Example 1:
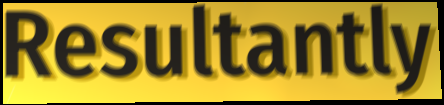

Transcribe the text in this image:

Resultantly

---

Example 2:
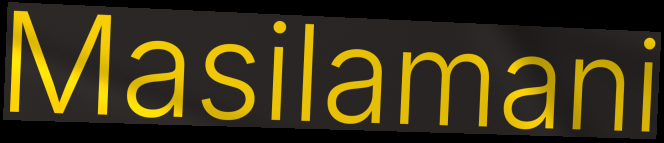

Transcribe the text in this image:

Masilamani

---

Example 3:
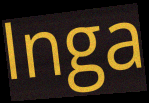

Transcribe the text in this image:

Inga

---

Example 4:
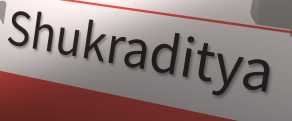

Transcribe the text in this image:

Shukraditya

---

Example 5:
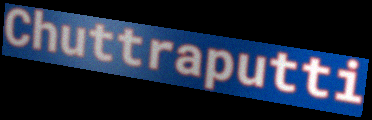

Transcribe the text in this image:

Chuttraputti